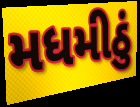
મધમીઠું